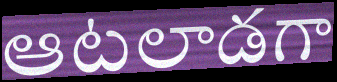
ఆటలాడగా